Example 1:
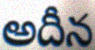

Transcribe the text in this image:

అదీన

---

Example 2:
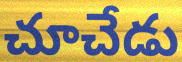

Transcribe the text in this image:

చూచేడు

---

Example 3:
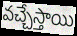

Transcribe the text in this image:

వచ్చేస్తాయి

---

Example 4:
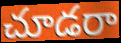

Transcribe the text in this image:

చూడరా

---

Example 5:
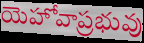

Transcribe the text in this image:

యెహోవాప్రభువు